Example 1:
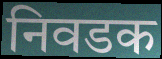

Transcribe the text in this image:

निवडक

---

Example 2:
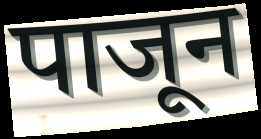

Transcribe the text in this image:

पाजून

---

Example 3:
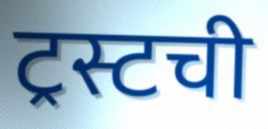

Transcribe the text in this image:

ट्रस्टची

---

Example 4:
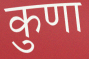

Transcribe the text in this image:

कुणा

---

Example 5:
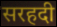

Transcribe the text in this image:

सरहदी